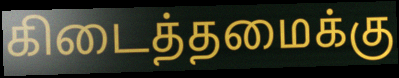
கிடைத்தமைக்கு